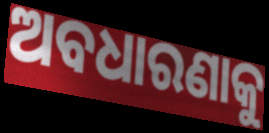
ଅବଧାରଣାକୁ